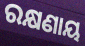
ରକ୍ଷଣାୟ